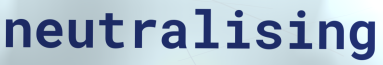
neutralising